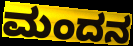
ಮಂದನ